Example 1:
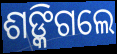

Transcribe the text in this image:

ଶଙ୍କିଗଲେ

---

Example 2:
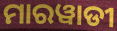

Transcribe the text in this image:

ମାରୱାଡୀ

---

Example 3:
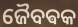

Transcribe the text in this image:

ଜୈବଵକ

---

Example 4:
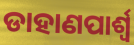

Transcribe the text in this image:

ଡାହାଣପାର୍ଶ୍ୱ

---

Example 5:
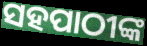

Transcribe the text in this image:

ସହପାଠୀଙ୍କ